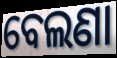
ବେଲଣା